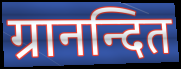
ग्रानन्दित